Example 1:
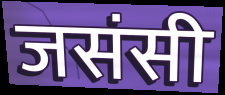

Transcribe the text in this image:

जसंसी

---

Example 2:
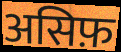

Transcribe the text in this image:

असिफ़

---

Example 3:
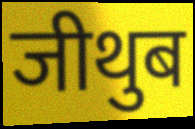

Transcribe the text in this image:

जीथुब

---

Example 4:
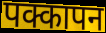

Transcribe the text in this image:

पक्कापन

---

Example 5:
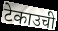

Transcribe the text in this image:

टेकाउची